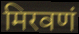
मिरवणं